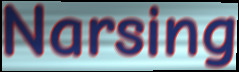
Narsing